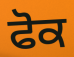
ਫੋਕ